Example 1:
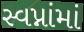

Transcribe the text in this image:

સ્વપ્નાંમાં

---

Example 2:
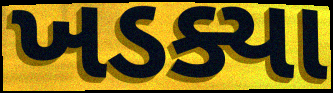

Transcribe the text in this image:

ખડક્યા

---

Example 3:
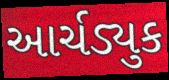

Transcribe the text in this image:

આર્ચડ્યુક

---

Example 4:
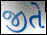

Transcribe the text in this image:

જીતે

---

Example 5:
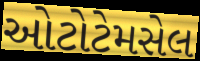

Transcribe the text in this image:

ઓટોટેમસેલ